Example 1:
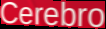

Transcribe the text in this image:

Cerebro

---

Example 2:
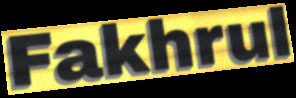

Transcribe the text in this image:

Fakhrul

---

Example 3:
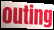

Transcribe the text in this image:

outing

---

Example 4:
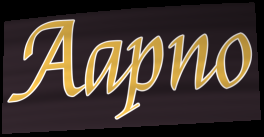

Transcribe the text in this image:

Aapno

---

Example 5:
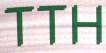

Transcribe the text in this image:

TTH